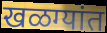
खळग्यांत